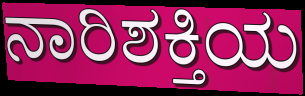
ನಾರಿಶಕ್ತಿಯ